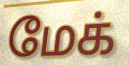
மேக்